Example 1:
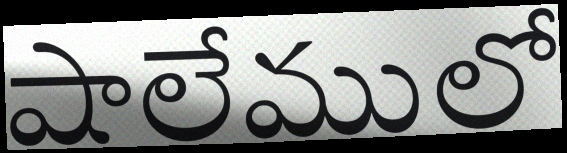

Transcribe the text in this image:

షాలేములో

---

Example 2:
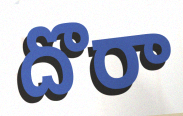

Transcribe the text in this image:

దొరా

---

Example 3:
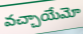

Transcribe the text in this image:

వచ్చాయేమో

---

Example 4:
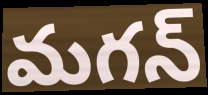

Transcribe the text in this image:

మగన్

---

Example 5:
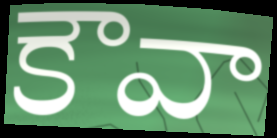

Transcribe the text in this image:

కౌవా